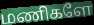
மணிகளே